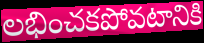
లభించకపోవటానికి